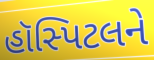
હૉસ્પિટલને